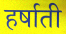
हर्षाती